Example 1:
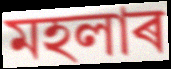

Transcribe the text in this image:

মহলাৰ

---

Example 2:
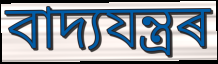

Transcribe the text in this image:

বাদ্যযন্ত্ৰৰ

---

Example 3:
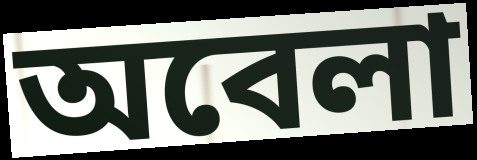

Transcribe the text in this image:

অবেলা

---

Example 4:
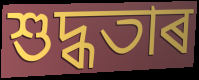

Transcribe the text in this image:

শুদ্ধতাৰ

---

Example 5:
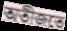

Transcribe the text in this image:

অতীজতে